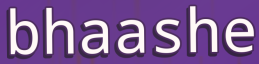
bhaashe